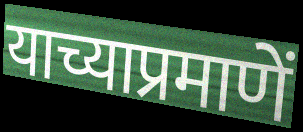
याच्याप्रमाणें